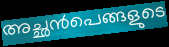
അച്ഛൻപെങ്ങളുടെ